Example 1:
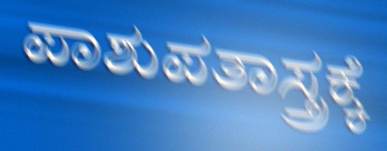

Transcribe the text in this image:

ಪಾಶುಪತಾಸ್ತ್ರಕ್ಕೆ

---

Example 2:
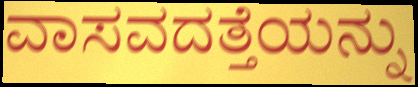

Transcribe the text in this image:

ವಾಸವದತ್ತೆಯನ್ನು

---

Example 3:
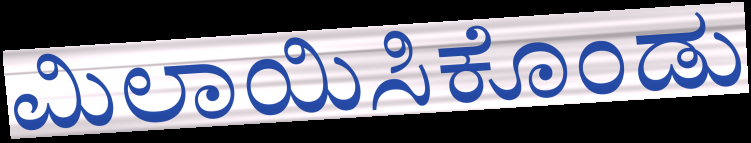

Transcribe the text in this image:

ಮಿಲಾಯಿಸಿಕೊಂಡು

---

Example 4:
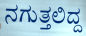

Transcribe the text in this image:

ನಗುತ್ತಲಿದ್ದ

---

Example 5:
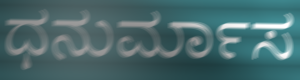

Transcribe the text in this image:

ಧನುರ್ಮಾಸ